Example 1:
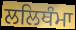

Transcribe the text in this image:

ਲਲਿਥੰਮਾ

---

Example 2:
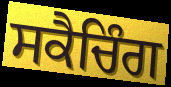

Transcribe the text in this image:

ਸਕੈਚਿੰਗ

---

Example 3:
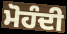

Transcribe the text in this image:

ਮੋਹੰਦੀ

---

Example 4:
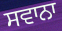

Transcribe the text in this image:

ਸਵਾਨਾ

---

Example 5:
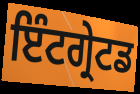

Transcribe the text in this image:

ਇੰਟਗ੍ਰੇਟਡ